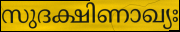
സുദക്ഷിണാഖ്യഃ